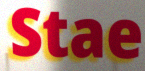
Stae